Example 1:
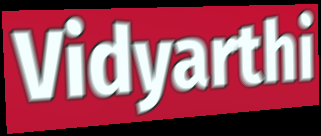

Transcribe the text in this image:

Vidyarthi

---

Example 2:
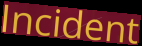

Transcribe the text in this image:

Incident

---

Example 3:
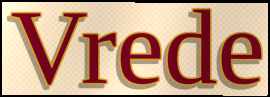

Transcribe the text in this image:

Vrede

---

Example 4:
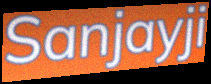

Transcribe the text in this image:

Sanjayji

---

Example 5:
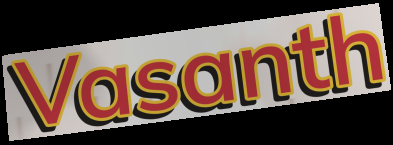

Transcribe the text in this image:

Vasanth